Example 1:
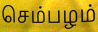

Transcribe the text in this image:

செம்பழம்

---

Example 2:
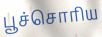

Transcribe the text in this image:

பூச்சொரிய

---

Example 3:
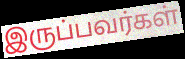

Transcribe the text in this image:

இருப்பவர்கள்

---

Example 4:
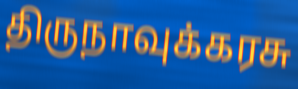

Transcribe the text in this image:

திருநாவுக்கரசு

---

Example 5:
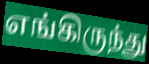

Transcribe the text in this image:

எங்கிருந்து